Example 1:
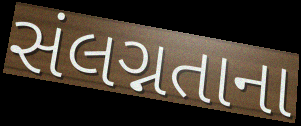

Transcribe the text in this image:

સંલગ્નતાના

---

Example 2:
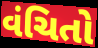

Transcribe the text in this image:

વંચિતો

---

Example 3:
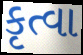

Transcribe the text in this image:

કૃત્વા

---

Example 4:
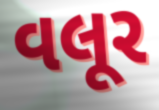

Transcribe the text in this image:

વલૂર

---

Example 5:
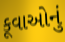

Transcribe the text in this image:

કૂવાઓનું